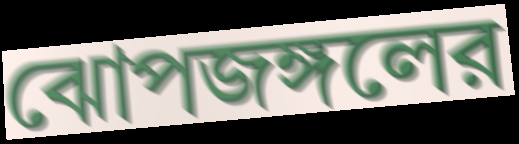
ঝোপজঙ্গলের